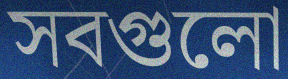
সবগুলো